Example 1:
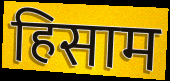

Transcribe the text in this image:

हिसाम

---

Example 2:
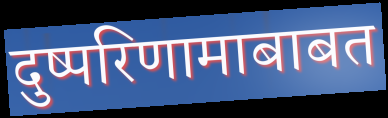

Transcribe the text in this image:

दुष्परिणामाबाबत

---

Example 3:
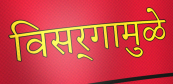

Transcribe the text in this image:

विसर्गामुळे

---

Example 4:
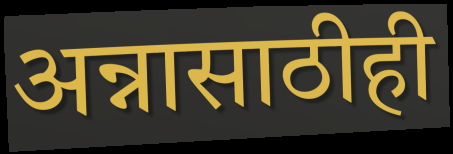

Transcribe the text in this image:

अन्नासाठीही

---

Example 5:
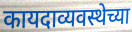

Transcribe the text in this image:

कायदाव्यवस्थेच्या